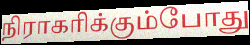
நிராகரிக்கும்போது